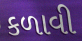
કળાવી